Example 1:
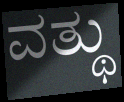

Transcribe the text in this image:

ವತ್ಥು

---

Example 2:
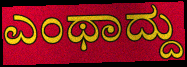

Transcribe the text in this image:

ಎಂಥಾದ್ದು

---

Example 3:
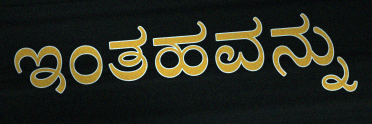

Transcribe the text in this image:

ಇಂತಹವನ್ನು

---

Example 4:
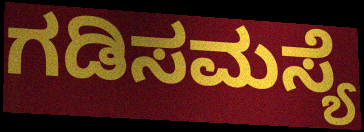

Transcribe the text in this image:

ಗಡಿಸಮಸ್ಯೆ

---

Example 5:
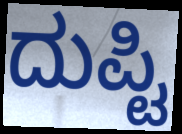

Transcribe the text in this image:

ದುಪ್ಟಿ